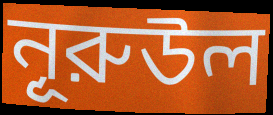
নূরুউল